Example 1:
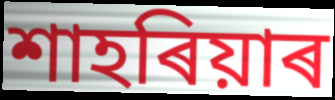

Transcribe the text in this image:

শাহৰিয়াৰ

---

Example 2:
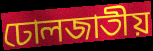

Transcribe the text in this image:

ঢোলজাতীয়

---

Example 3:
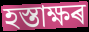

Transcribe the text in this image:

হস্তাক্ষৰ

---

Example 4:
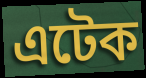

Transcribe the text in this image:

এটেক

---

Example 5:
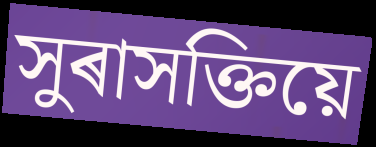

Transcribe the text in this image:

সুৰাসক্তিয়ে